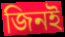
জিনই